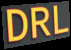
DRL